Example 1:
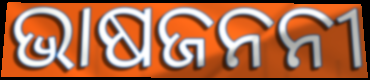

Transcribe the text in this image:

ଭାଷଜନନୀ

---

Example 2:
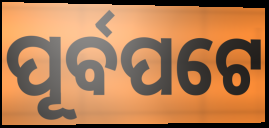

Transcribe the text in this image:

ପୂର୍ବପଟେ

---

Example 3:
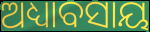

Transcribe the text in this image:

ଅଧ୍ୟାବସାୟ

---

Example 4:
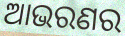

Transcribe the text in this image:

ଆଭରଣର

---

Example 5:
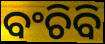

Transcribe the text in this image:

ବଂଚିବି